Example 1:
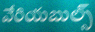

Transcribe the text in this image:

వేరియబుల్స్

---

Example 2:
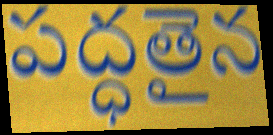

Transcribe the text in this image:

పద్ధతైన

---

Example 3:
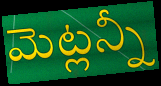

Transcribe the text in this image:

మెట్లన్నీ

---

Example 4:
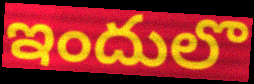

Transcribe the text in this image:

ఇందులొ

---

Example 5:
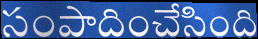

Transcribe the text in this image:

సంపాదించేసింది